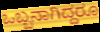
ಒಬ್ಬನಾಗಿದ್ದರೂ